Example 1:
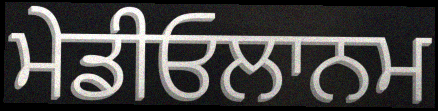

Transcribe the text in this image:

ਮੇਡੀਓਲਾਨਮ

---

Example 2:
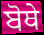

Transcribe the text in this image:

ਬੋਥੇ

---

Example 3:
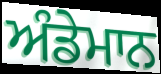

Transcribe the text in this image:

ਅੰਡੇਮਾਨ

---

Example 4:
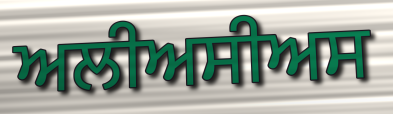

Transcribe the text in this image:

ਅਲੀਅਸੀਅਸ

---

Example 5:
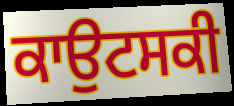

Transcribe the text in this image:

ਕਾਉਟਸਕੀ